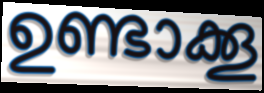
ഉണ്ടാക്കൂ